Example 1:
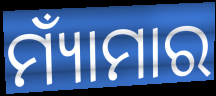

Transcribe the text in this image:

ମ୍ୟାଁମାର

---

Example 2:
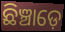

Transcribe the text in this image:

ଛିଞ୍ଚାଡ଼େ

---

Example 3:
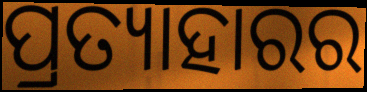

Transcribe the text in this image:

ପ୍ରତ୍ୟାହାରର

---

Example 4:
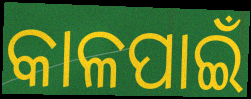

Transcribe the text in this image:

କାଳପାଇଁ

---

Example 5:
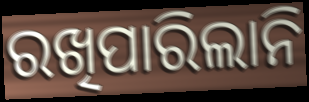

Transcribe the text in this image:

ରଖିପାରିଲାନି